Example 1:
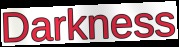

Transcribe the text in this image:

Darkness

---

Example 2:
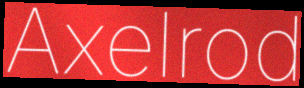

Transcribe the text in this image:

Axelrod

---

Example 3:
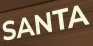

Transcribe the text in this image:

SANTA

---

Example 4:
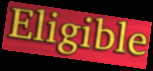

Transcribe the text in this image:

Eligible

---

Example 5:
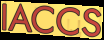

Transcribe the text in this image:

IACCS